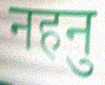
नहनु